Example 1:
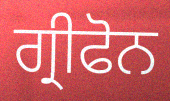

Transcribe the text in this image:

ਗ੍ਰੀਫੋਨ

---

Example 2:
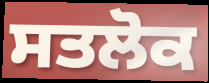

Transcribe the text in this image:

ਸਤਲੋਕ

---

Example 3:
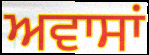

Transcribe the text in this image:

ਅਵਾਸਾਂ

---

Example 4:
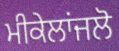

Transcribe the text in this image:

ਮੀਕੇਲਾਂਜਲੋ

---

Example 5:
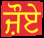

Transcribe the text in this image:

ਜ਼ੌਏ